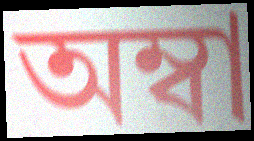
অম্বা